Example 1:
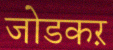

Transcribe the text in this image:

जोडकऱ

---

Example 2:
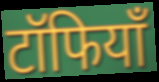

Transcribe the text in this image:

टॉफियाँ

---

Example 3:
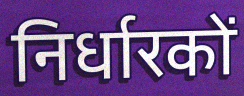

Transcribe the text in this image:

निर्धारकों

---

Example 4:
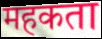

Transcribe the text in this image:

महकता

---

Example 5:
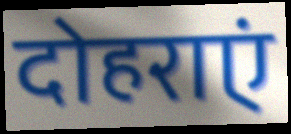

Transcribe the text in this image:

दोहराएं